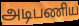
அடிபணிய